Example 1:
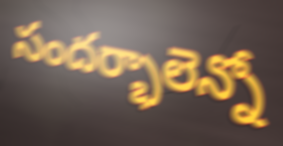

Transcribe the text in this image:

సందర్భాలెన్నో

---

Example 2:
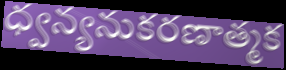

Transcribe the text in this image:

ధ్వన్యనుకరణాత్మక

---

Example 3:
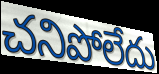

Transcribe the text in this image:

చనిపోలేదు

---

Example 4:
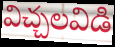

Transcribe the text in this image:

విచ్చలవిడి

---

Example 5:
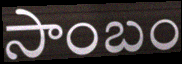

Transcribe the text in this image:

సాంబం